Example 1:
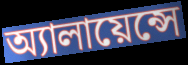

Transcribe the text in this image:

অ্যালায়েন্সে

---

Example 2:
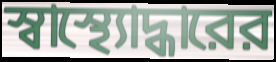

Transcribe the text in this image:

স্বাস্থ্যোদ্ধারের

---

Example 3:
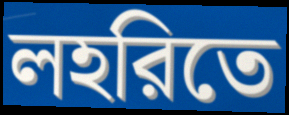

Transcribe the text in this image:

লহরিতে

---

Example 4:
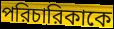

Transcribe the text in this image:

পরিচারিকাকে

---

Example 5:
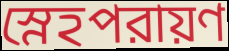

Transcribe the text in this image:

স্নেহপরায়ণ